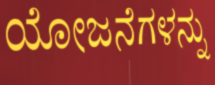
ಯೋಜನೆಗಳನ್ನು